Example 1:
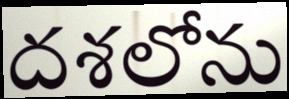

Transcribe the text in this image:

దశలోను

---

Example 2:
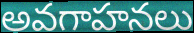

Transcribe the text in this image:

అవగాహనలు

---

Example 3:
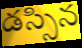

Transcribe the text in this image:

డస్సిన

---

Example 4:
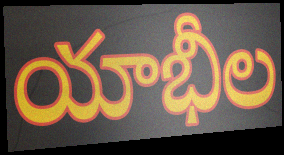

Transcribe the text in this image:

యాభీల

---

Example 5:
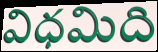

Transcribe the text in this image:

విధమిది